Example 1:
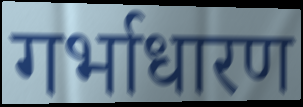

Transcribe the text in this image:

गर्भाधारण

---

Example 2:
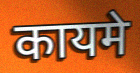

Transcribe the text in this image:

कायमे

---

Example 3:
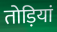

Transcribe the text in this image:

तोड़ियां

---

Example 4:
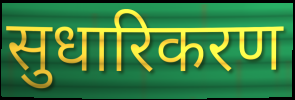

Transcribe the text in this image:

सुधारिकरण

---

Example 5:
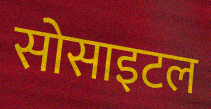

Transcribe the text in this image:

सोसाइटल